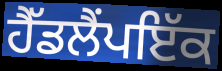
ਹੈੱਡਲੈਂਪਇੱਕ